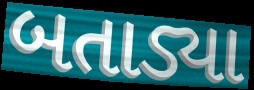
બતાડ્યા